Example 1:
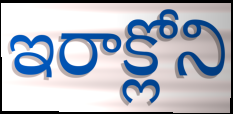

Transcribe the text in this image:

ఇరాక్లోని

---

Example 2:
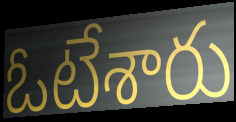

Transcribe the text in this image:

ఓటేశారు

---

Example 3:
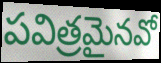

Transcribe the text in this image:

పవిత్రమైనవో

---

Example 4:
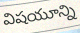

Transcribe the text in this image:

విషయూన్ని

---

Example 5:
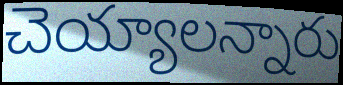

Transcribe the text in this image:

చెయ్యాలన్నారు